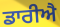
ਡਾਰੀਐ